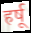
हर्षू